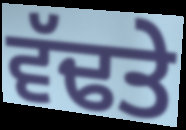
ਵੱਢਤੇ